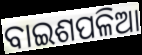
ବାଇଶପଳିଆ